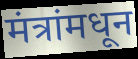
मंत्रांमधून